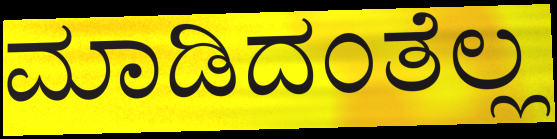
ಮಾಡಿದಂತೆಲ್ಲ